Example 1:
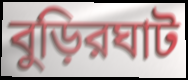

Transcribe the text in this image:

বুড়িরঘাট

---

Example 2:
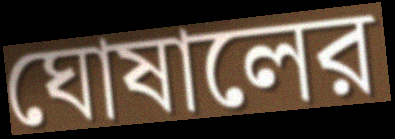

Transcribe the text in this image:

ঘোষালের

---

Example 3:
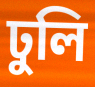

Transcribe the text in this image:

ঢুলি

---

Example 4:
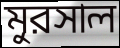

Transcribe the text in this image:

মুরসাল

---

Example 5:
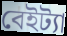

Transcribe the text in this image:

বেইট্যা